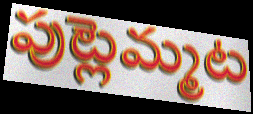
పుట్లెమ్మట